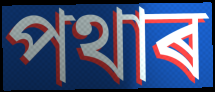
পথাৰ